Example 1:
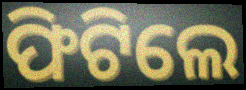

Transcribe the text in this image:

ଫିଟିଲେ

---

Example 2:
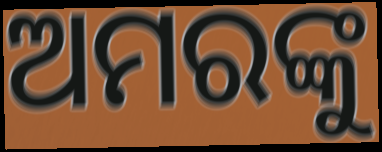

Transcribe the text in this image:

ଅମରଙ୍କୁ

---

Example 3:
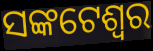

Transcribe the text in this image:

ସଙ୍କଟେଶ୍ୱର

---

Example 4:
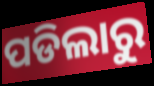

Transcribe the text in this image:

ପଡିଲାରୁ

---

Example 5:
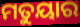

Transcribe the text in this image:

ମତୁୟାର